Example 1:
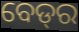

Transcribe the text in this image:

ବେଡ୍‍ର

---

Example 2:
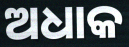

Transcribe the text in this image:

ଅଧାକ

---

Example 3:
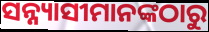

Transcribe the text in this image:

ସନ୍ନ୍ୟାସୀମାନଙ୍କଠାରୁ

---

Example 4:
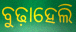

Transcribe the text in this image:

ବୁଢ଼ାହେଲି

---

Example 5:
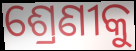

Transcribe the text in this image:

ଶ୍ରେଣୀକୁ